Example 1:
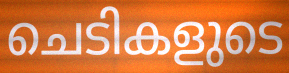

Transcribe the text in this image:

ചെടികളുടെ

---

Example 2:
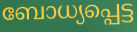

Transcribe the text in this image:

ബോധ്യപ്പെട്ട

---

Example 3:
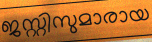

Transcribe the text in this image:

ജസ്റ്റിസുമാരായ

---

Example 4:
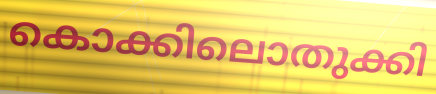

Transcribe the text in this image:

കൊക്കിലൊതുക്കി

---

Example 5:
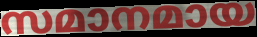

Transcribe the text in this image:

സമാനമായ